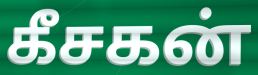
கீசகன்